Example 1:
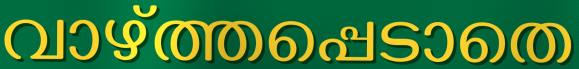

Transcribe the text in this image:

വാഴ്ത്തപ്പെടാതെ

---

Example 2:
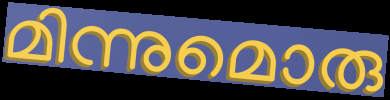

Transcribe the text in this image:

മിന്നുമൊരു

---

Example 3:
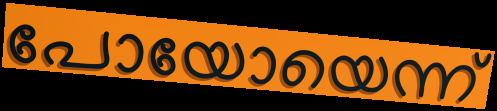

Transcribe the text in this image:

പോയോയെന്ന്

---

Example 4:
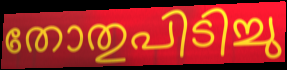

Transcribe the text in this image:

തോതുപിടിച്ചു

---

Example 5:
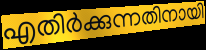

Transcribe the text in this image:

എതിർക്കുന്നതിനായി